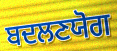
ਬਦਲਣਯੋਗ